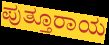
ಪುತ್ತೂರಾಯ